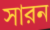
সারন